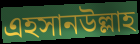
এহসানউল্লাহ